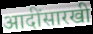
आदींसारखी